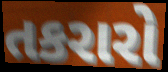
તકરારો